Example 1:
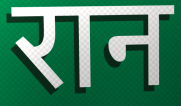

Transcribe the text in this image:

रान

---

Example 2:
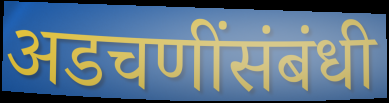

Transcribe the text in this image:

अडचणींसंबंधी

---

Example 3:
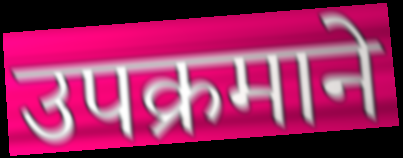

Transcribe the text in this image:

उपक्रमाने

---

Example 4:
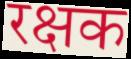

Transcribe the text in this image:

रक्षक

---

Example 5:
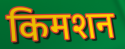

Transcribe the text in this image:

किमशन